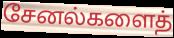
சேனல்களைத்